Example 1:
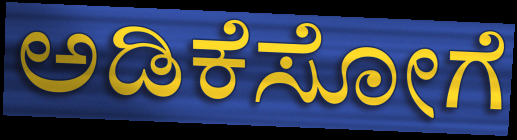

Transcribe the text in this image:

ಅಡಿಕೆಸೋಗೆ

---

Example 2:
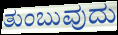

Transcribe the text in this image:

ತುಂಬುವುದು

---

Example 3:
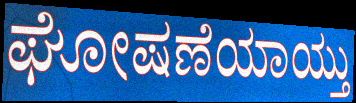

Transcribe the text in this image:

ಘೋಷಣೆಯಾಯ್ತು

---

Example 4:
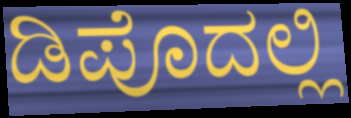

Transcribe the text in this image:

ಡಿಪೊದಲ್ಲಿ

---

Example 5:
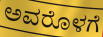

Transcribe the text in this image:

ಅವರೊಳಗೆ